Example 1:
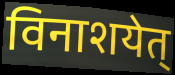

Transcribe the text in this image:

विनाशयेत्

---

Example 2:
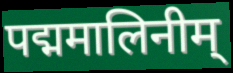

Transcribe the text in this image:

पद्ममालिनीम्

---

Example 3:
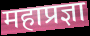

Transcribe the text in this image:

महाप्रज्ञा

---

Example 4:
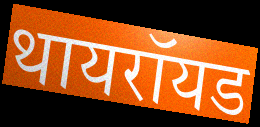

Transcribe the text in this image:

थायरॉयड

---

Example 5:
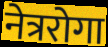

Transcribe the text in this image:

नेत्ररोगा